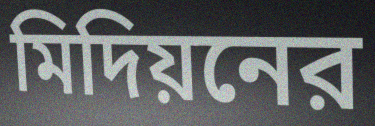
মিদিয়নের